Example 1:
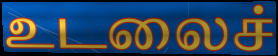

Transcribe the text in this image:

உடலைச்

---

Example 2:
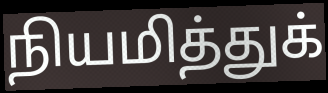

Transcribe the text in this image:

நியமித்துக்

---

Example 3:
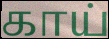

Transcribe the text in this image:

காய்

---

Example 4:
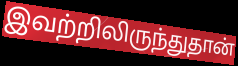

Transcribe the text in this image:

இவற்றிலிருந்துதான்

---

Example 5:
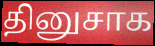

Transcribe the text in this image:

தினுசாக